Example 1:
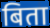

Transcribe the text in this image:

बिता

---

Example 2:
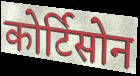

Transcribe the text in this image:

कोर्टिसोन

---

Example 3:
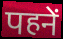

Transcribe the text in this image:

पहनें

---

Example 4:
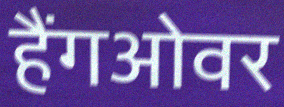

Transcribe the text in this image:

हैंगओवर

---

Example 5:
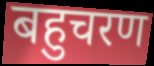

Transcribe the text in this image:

बहुचरण